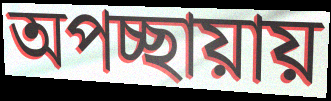
অপচ্ছায়ায়